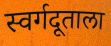
स्वर्गदूताला